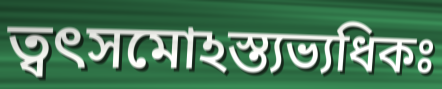
ত্বৎসমোঽস্ত্যভ্যধিকঃ